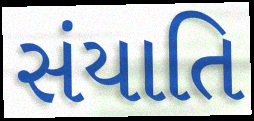
સંયાતિ